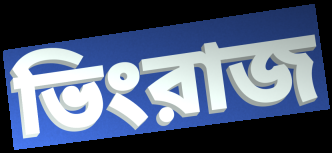
ভিংরাজ